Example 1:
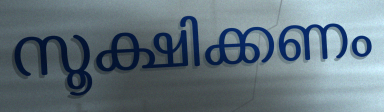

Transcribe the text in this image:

സൂക്ഷിക്കണം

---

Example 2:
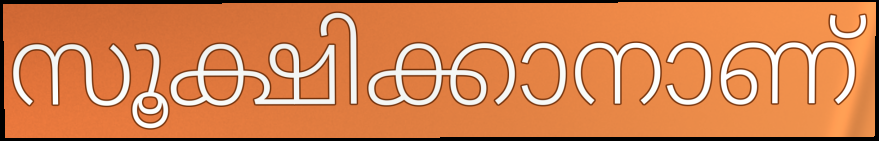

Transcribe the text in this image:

സൂക്ഷിക്കാനാണ്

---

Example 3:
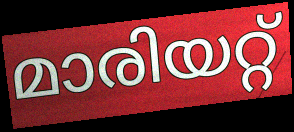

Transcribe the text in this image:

മാരിയറ്റ്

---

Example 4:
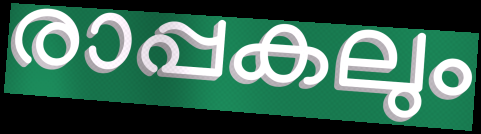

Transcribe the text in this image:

രാപ്പകലും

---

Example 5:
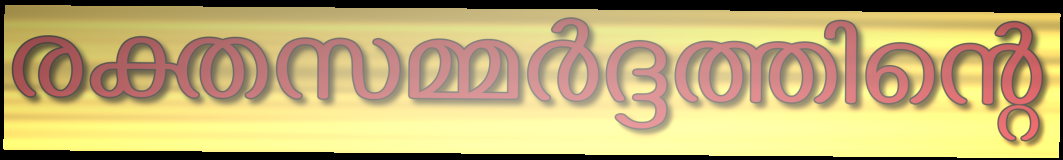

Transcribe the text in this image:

രക്തസമ്മർദ്ദത്തിന്റെ